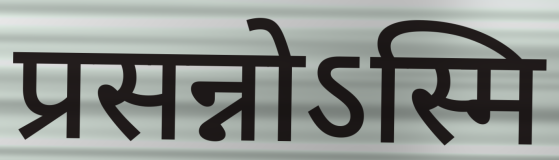
प्रसन्नोऽस्मि